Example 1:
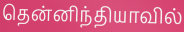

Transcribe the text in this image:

தென்னிந்தியாவில்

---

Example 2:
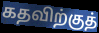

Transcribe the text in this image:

கதவிற்குத்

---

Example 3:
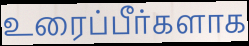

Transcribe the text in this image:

உரைப்பீர்களாக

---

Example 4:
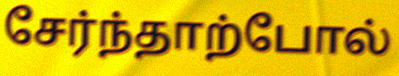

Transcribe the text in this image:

சேர்ந்தாற்போல்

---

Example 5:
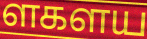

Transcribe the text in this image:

ளகளய